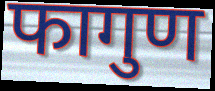
फागुण